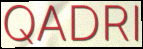
QADRI